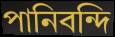
পানিবন্দি